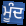
ਮੂੰਦ